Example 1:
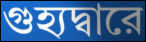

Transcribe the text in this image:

গুহ্যদ্বারে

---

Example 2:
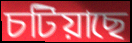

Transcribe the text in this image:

চটিয়াছে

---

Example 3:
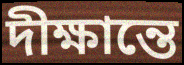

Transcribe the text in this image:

দীক্ষান্তে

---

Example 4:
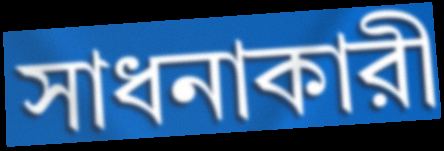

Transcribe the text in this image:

সাধনাকারী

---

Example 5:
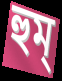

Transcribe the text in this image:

হুম্